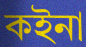
কইনা